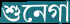
শুনেগা